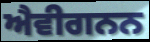
ਐਵੀਗਨਨ